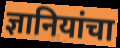
ज्ञानियांचा